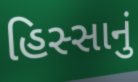
હિસ્સાનું